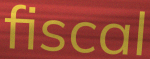
fiscal